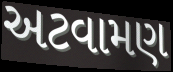
અટવામણ